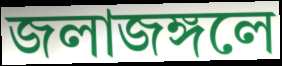
জলাজঙ্গলে